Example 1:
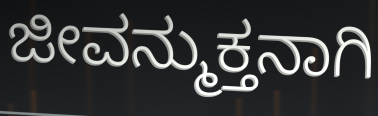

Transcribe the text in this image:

ಜೀವನ್ಮುಕ್ತನಾಗಿ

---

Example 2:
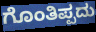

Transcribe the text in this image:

ಗೊಂತಿಪ್ಪದು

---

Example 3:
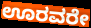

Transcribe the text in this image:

ಊರವರೇ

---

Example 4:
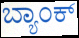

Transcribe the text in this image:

ಬ್ಯಾಂಕ್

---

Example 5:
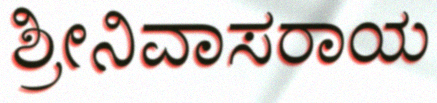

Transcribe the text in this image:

ಶ್ರೀನಿವಾಸರಾಯ